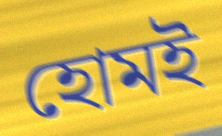
হোমই